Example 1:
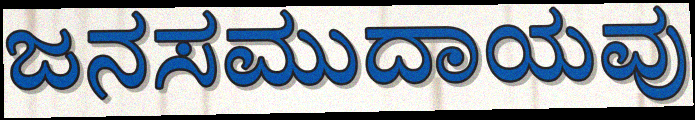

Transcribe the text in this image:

ಜನಸಮುದಾಯವು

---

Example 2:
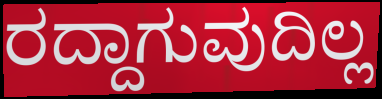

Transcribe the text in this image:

ರದ್ದಾಗುವುದಿಲ್ಲ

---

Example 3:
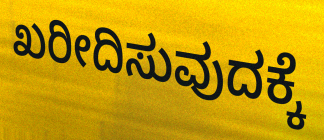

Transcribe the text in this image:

ಖರೀದಿಸುವುದಕ್ಕೆ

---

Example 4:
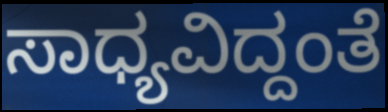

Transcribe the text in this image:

ಸಾಧ್ಯವಿದ್ದಂತೆ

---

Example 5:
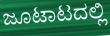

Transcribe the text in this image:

ಜೂಟಾಟದಲ್ಲಿ